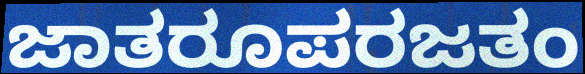
ಜಾತರೂಪರಜತಂ